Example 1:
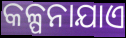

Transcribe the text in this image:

କଳ୍ପନାଯାଏ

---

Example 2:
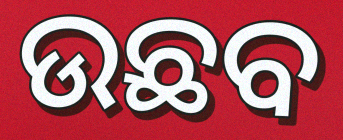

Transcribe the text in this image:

ଉଛବ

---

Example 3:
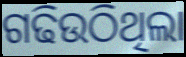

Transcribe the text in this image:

ଗଢିଉଠିଥିଲା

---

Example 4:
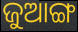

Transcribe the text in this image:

ଜୁଆଙ୍ଗ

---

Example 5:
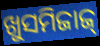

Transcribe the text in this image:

ଖୁସମିଜାଜ୍